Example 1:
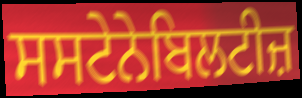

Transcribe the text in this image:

ਸਸਟੇਨੇਬਿਲਟੀਜ਼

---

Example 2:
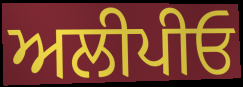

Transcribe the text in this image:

ਅਲੀਪੀਓ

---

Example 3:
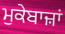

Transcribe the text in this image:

ਮੁਕੇਬਾਜ਼ਾਂ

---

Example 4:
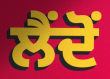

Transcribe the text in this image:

ਲੈਂਦੋਂ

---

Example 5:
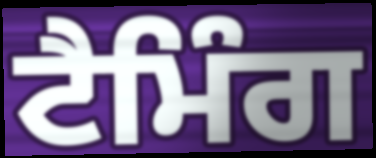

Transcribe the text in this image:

ਟੈਮਿੰਗ